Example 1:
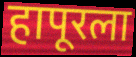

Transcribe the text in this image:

हापूरला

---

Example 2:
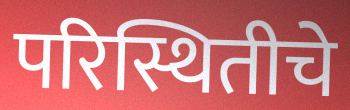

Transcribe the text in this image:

परिस्थितीचे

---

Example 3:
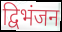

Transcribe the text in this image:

द्विभंजन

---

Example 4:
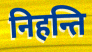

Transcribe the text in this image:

निहन्ति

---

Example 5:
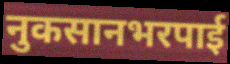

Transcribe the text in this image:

नुकसानभरपाई